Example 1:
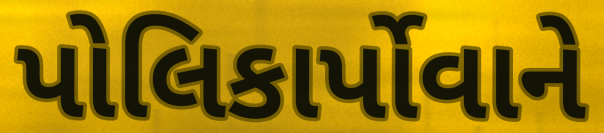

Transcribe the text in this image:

પોલિકાર્પોવાને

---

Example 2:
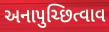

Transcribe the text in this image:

અનાપુચ્છિત્વાવ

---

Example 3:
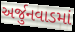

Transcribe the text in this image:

અર્જુનવાડમાં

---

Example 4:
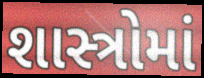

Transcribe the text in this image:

શાસ્ત્રોમાં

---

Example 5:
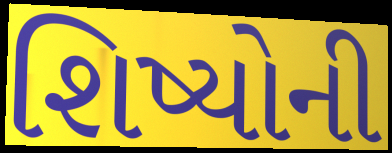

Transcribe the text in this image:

શિષ્યોની